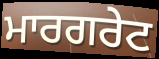
ਮਾਰਗਰੇਟ